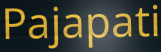
Pajapati